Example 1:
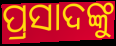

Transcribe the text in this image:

ପ୍ରସାଦଙ୍କୁ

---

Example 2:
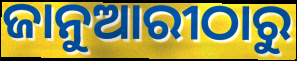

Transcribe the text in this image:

ଜାନୁଆରୀଠାରୁ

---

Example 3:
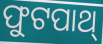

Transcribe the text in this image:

ଫୁଟପାଥ୍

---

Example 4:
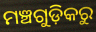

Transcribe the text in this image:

ମଞ୍ଚଗୁଡ଼ିକରୁ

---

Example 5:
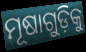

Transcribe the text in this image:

ମୂଷାଗୁଡ଼ିକୁ